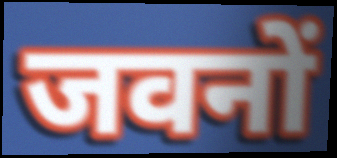
जवनों